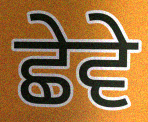
ਛੇਵੇ